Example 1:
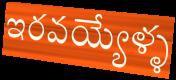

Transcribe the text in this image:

ఇరవయ్యేళ్ళ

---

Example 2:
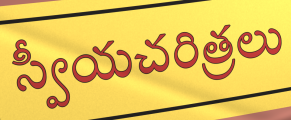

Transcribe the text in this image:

స్వీయచరిత్రలు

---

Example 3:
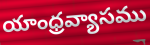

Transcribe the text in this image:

యాంధ్రవ్యాసము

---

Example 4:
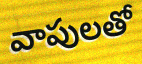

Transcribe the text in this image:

వాపులతో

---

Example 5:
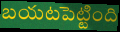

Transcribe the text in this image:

బయటపెట్టింది